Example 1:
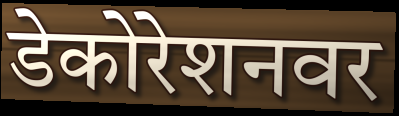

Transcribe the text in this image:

डेकोरेशनवर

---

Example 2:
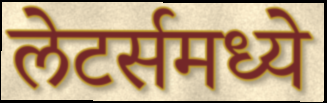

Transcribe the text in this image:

लेटर्समध्ये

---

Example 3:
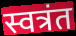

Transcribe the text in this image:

स्वत्रंत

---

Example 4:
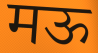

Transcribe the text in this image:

मऊ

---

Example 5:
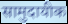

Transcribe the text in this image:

सामुदायीक